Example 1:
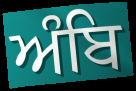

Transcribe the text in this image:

ਅੰਬਿ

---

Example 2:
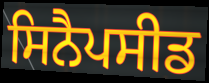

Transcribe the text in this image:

ਸਿਨੈਪਸੀਡ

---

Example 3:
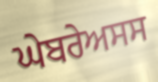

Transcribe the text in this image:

ਘੇਬਰੇਅਸਸ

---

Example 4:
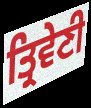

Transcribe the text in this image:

ਤ੍ਰਿਵੇਣੀ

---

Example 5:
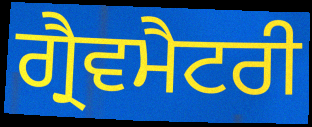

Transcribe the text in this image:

ਗ੍ਰੈਵਮੈਟਰੀ